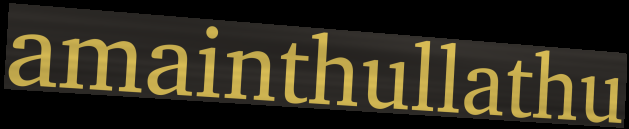
amainthullathu